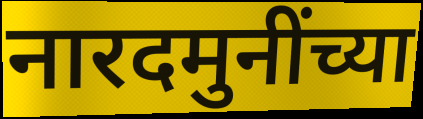
नारदमुनींच्या